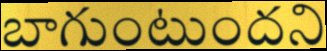
బాగుంటుందని